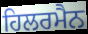
ਹਿਲਰਮੈਨ